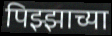
पिझ्झाच्या